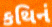
કથિનં